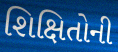
શિક્ષિતોની